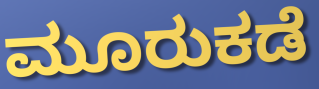
ಮೂರುಕಡೆ